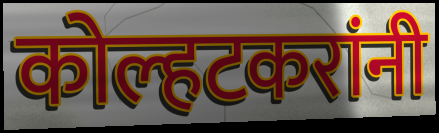
कोल्हटकरांनी